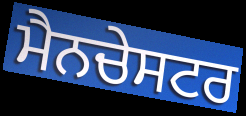
ਮੈਨਚੇਸਟਰ